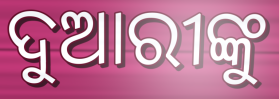
ଦୁଆରୀଙ୍କୁ